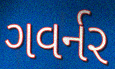
ગવર્નર